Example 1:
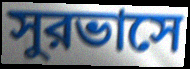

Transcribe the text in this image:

সুরভাসে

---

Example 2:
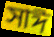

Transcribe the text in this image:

সাঈ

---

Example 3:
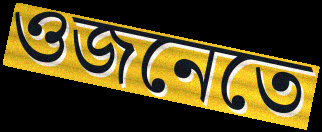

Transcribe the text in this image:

ওজনেতে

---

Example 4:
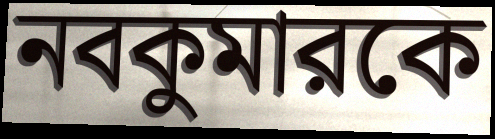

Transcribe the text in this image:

নবকুমারকে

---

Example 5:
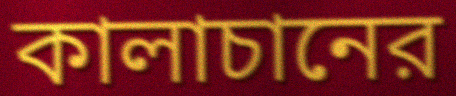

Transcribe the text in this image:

কালাচানের